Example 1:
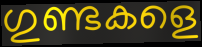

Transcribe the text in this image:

ഗുണ്ടകളെ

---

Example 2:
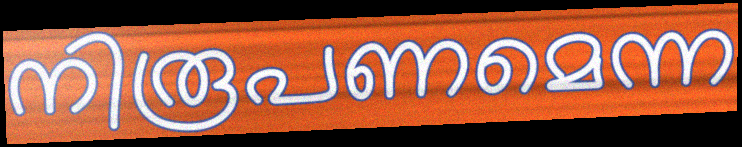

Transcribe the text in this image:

നിരൂപണമെന്ന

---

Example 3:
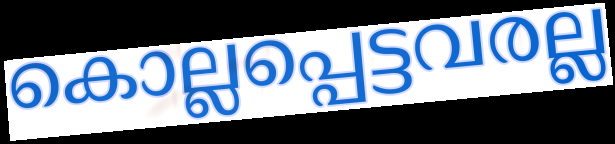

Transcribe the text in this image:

കൊല്ലപ്പെട്ടവരല്ല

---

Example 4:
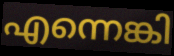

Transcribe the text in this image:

എന്നെങ്കി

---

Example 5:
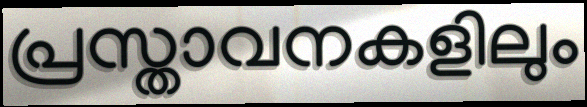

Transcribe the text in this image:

പ്രസ്താവനകളിലും